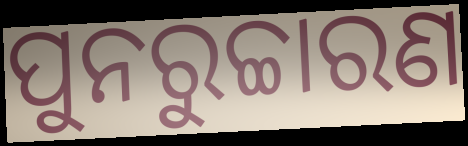
ପୁନରୁଚ୍ଚାରଣ